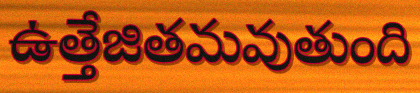
ఉత్తేజితమవుతుంది